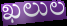
ఖలుల